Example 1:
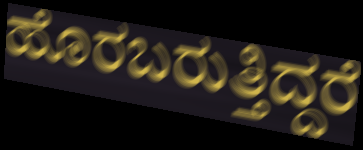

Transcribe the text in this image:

ಹೊರಬರುತ್ತಿದ್ದರೆ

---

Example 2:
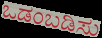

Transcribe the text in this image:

ಒಡಂಬಡಿಸು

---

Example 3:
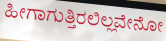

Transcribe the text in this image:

ಹೀಗಾಗುತ್ತಿರಲಿಲ್ಲವೇನೋ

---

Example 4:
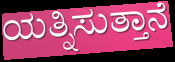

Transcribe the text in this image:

ಯತ್ನಿಸುತ್ತಾನೆ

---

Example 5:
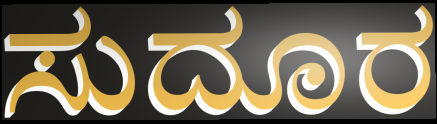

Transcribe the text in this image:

ಸುದೂರ